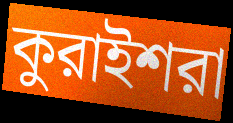
কুরাইশরা